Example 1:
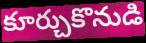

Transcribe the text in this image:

కూర్చుకొనుడి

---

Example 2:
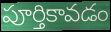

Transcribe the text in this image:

పూర్తికావడం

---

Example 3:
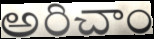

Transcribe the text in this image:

అరిచాం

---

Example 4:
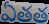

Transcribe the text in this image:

ఏతత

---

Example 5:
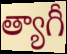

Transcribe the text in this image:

త్యాగీ